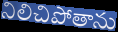
నిలిచిపోతాను